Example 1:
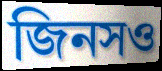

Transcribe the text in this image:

জিনসও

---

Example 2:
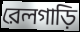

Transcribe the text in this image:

রেলগাড়ি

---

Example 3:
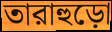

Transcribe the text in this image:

তারাহুড়ো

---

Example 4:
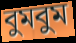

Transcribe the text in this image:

বুমবুম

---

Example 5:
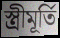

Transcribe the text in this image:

স্ত্রীমূর্তি